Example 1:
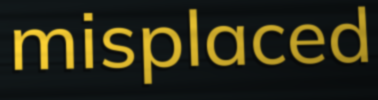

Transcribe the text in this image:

misplaced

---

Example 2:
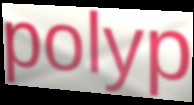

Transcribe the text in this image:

polyp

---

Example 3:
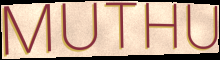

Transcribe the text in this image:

MUTHU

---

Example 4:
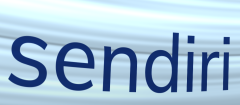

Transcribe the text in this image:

sendiri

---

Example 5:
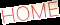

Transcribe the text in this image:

HOME